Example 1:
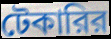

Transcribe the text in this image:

টেকারির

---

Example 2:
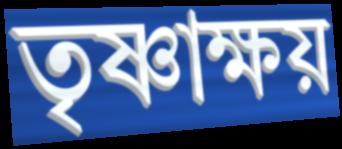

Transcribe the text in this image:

তৃষ্ণাক্ষয়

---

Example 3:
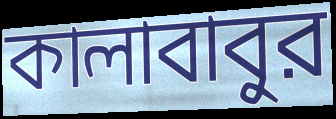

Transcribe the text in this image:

কালাবাবুর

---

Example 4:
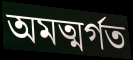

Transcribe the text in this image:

অমত্মর্গত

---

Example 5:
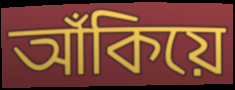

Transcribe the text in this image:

আঁকিয়ে